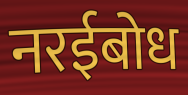
नरईबोध